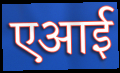
एआई